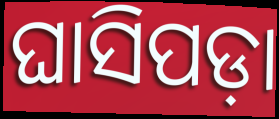
ଘାସିପଡ଼ା